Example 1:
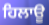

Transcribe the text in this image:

ਹਿਲਾਊ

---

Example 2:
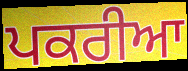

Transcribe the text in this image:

ਪਕਰੀਆ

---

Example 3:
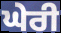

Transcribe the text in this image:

ਘੇਰੀ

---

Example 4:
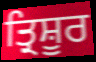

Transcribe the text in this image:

ਤ੍ਰਿਸ਼ੂਰ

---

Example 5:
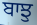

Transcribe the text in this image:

ਬਾਝੁ